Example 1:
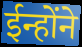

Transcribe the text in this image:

ईन्होंने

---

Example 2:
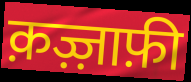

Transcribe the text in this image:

क़ज़्ज़ाफ़ी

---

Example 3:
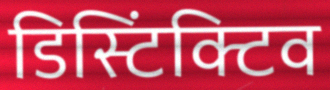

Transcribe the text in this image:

डिस्टिंक्टिव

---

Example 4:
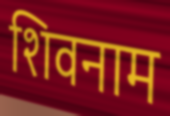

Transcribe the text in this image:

शिवनाम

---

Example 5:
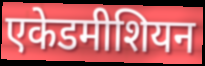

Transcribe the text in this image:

एकेडमीशियन